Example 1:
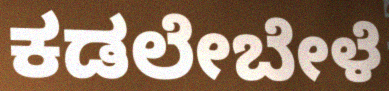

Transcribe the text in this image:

ಕಡಲೇಬೇಳೆ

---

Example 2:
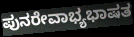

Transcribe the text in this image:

ಪುನರೇವಾಭ್ಯಭಾಷತ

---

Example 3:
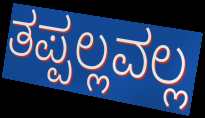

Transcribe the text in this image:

ತಪ್ಪಲ್ಲವಲ್ಲ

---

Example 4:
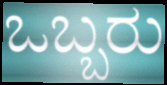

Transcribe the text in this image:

ಒಬ್ಬರು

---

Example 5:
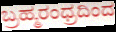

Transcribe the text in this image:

ಬ್ರಹ್ಮರಂಧ್ರದಿಂದ